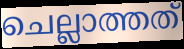
ചെല്ലാത്തത്